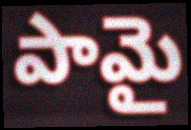
పామై